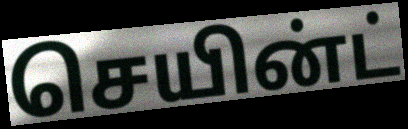
செயின்ட்